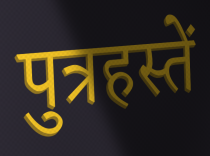
पुत्रहस्तें